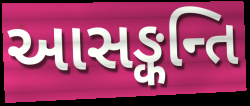
આસઙ્કન્તિ